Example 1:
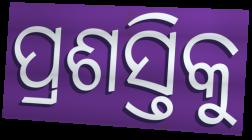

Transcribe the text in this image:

ପ୍ରଶସ୍ତିକୁ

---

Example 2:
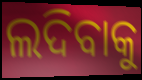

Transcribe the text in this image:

ଲଦିବାକୁ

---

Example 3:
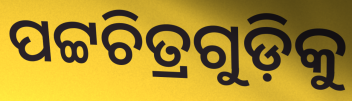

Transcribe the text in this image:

ପଟ୍ଟଚିତ୍ରଗୁଡ଼ିକୁ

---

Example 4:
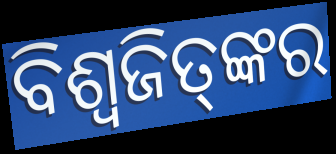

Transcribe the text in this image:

ବିଶ୍ଵଜିତ୍‌ଙ୍କର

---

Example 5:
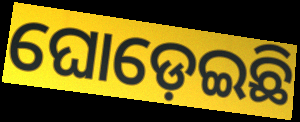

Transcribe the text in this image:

ଘୋଡ଼େଇଛି